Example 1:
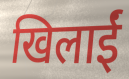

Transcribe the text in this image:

खिलाईं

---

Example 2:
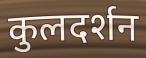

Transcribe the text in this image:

कुलदर्शन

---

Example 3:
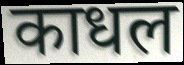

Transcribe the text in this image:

काधल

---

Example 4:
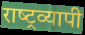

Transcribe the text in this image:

राष्‍ट्रव्‍यापी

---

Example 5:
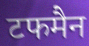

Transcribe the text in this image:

टफमैन